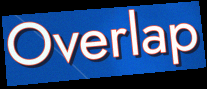
Overlap